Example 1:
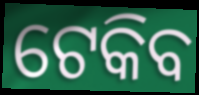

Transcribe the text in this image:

ଟେକିବ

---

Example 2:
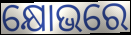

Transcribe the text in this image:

କ୍ଷୋଭରେ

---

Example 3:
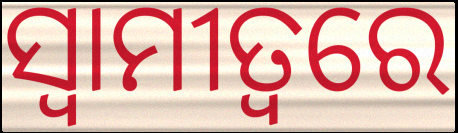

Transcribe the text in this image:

ସ୍ୱାମୀତ୍ୱରେ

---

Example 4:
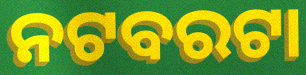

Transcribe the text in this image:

ନଟବରଟା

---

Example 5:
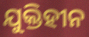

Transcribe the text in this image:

ଯୁକ୍ତିହୀନ